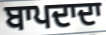
ਬਾਪਦਾਦਾ